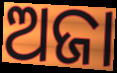
ଅଜା